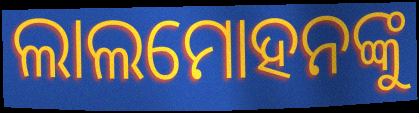
ଲାଲମୋହନଙ୍କୁ